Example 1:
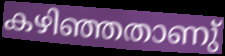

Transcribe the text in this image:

കഴിഞ്ഞതാണു്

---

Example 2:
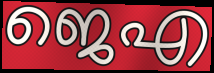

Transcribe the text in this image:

ജെഎ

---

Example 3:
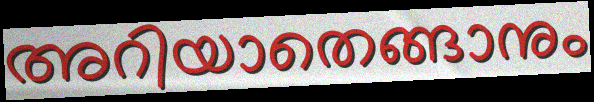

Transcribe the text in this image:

അറിയാതെങ്ങാനും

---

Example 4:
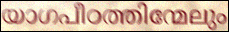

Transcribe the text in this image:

യാഗപീഠത്തിന്മേലും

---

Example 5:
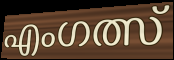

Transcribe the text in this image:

എംഗത്സ്